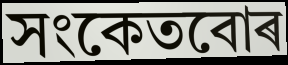
সংকেতবোৰ